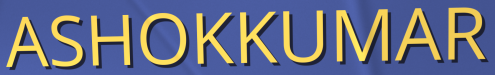
ASHOKKUMAR